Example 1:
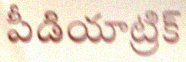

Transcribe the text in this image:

పీడియాట్రిక్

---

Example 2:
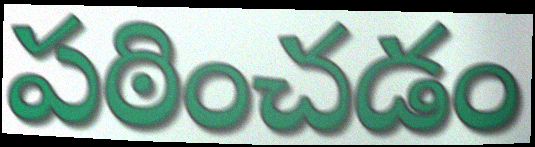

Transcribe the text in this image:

పఠించడం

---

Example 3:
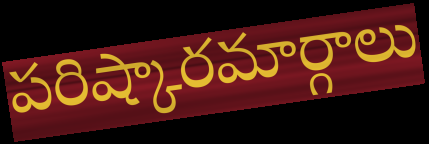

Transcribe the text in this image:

పరిష్కారమార్గాలు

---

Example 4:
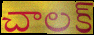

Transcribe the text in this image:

చాలక్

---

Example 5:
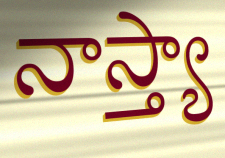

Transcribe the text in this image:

నాస్త్యా